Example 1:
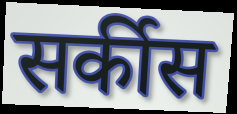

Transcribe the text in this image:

सर्कीस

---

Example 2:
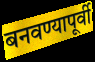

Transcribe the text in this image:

बनवण्यापूर्वी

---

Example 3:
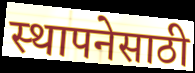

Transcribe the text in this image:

स्थापनेसाठी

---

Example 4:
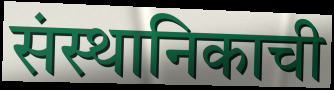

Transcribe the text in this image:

संस्थानिकाची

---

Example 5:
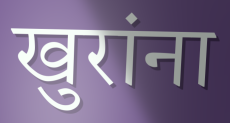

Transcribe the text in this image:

खुरांना